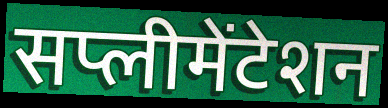
सप्लीमेंटेशन